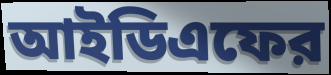
আইডিএফের